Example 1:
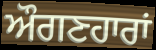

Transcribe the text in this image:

ਔਗਣਹਾਰਾਂ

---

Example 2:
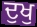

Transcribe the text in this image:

ਦੁਖੁ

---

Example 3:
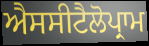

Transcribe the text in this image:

ਐਸਸੀਟੈਲੋਪ੍ਰਾਮ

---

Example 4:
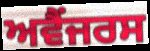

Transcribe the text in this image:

ਅਵੈਂਜਰਸ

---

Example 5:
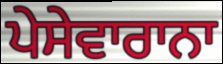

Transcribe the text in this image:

ਪੇਸੇਵਾਰਾਨਾ